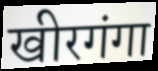
खीरगंगा